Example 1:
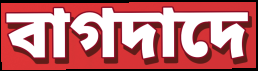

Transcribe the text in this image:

বাগদাদে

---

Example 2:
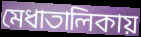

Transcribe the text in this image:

মেধাতালিকায়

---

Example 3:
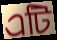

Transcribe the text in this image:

এটি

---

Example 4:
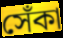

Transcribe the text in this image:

সেঁকা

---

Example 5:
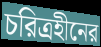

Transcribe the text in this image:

চরিত্রহীনের